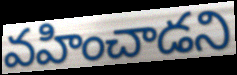
వహించాడని